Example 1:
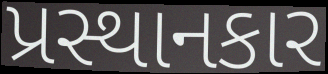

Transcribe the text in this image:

પ્રસ્થાનકાર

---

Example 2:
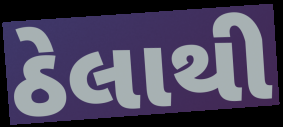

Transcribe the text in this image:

ઠેલાથી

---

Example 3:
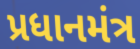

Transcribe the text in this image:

પ્રધાનમંત્ર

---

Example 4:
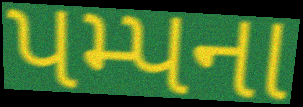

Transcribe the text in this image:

પમ્પના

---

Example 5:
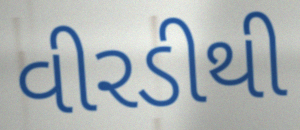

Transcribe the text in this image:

વીરડીથી